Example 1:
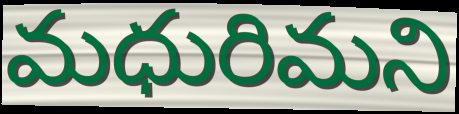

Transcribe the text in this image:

మధురిమని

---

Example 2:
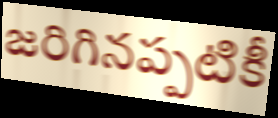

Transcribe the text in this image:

జరిగినప్పటికీ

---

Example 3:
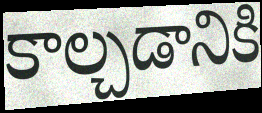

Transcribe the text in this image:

కాల్చడానికి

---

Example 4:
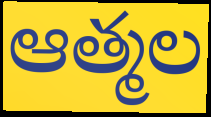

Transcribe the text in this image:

ఆత్మల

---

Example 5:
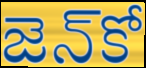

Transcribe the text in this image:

జెన్‌కో